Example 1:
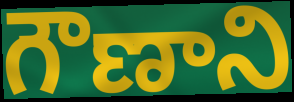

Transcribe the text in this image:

గౌణాని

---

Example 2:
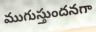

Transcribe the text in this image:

ముగుస్తుందనగా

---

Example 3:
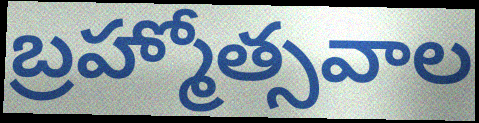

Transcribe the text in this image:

బ్రహ్మోత్సవాల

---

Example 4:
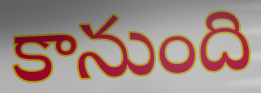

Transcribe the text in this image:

కానుంది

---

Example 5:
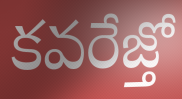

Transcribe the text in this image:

కవరేజ్తో